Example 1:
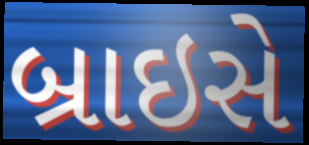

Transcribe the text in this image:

બ્રાઇસે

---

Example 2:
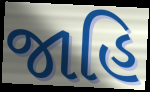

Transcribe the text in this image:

જાહિ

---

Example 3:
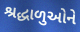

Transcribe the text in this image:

શ્રદ્ધાળુઓને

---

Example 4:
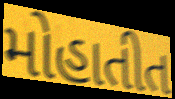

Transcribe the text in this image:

મોહાતીત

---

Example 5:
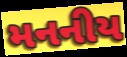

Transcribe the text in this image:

મનનીય